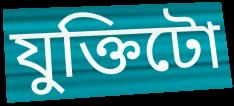
যুক্তিটো